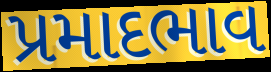
પ્રમાદભાવ